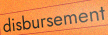
disbursement